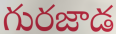
గురజాడ